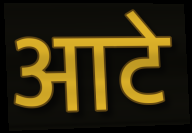
आटे